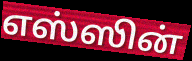
எஸ்ஸின்